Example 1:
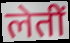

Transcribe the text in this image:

लेतीं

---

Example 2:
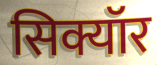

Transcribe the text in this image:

सिक्यॉर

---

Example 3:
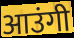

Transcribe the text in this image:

आउंगी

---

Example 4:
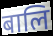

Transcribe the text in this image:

बालि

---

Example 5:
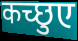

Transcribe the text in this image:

कच्छुए